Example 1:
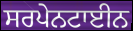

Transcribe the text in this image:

ਸਰਪੇਨਟਾਈਨ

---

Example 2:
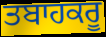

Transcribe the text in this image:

ਤਬਾਹਕਰੂ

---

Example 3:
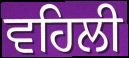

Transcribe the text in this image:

ਵਹਿਲੀ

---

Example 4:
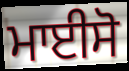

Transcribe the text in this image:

ਮਾਈਸੋ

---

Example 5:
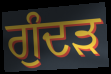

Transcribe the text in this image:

ਗੁੰਦੜ